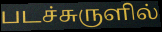
படச்சுருளில்